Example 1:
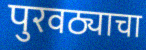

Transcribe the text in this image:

पुरवठ्याचा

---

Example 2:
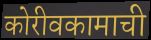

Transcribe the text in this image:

कोरीवकामाची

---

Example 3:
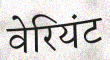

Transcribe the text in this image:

वेरियंट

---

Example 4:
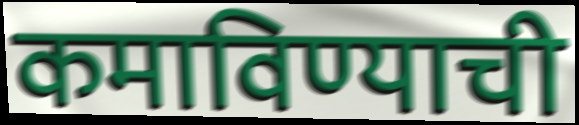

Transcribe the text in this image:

कमाविण्याची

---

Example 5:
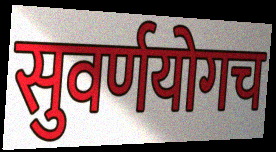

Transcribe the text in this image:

सुवर्णयोगच